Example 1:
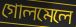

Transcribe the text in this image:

গোলমেলে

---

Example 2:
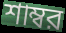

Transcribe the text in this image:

শাম্বর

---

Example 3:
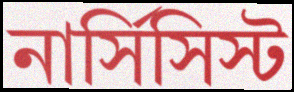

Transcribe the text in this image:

নার্সিসিস্ট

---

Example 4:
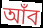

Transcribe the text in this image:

আঁব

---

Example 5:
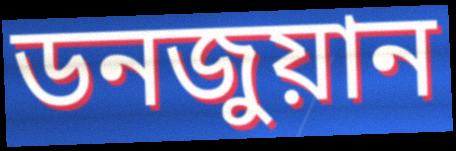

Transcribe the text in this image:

ডনজুয়ান